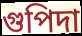
গুপিদা